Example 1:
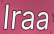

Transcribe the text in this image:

Iraa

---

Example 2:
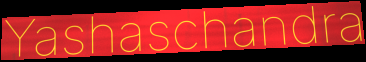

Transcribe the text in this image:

Yashaschandra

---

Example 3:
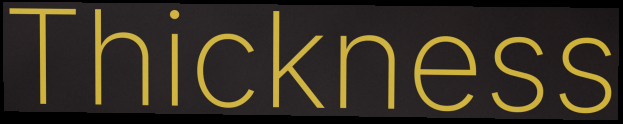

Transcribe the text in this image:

Thickness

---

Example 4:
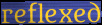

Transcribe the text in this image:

reflexed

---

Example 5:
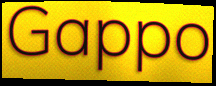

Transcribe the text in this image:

Gappo